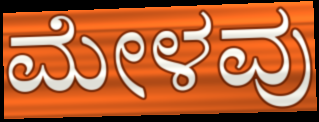
ಮೇಳವು